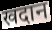
खदान